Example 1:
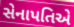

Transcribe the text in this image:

સેનાપતિએ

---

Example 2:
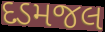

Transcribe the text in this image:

દડમજલ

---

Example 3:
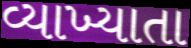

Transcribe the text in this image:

વ્યાખ્યાતા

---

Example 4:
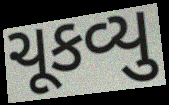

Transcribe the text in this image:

ચૂકવ્યુ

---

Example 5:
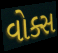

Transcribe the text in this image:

વોક્સ